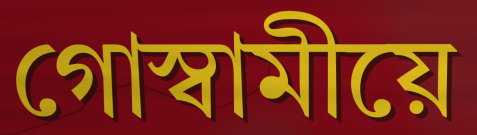
গোস্বামীয়ে